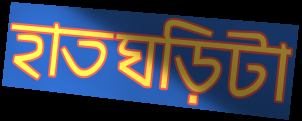
হাতঘড়িটা